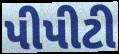
પીપીટી